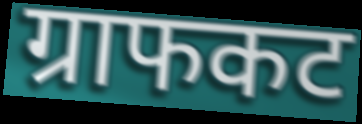
ग्राफकट